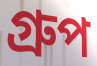
গ্ৰুপ